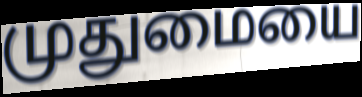
முதுமையை